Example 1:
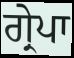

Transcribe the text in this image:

ਗ੍ਰੇਪਾ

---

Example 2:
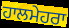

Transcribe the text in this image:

ਹਾਲਮੇਹਰਾ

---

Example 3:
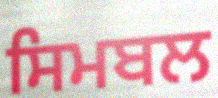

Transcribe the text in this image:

ਸਿਮਬਲ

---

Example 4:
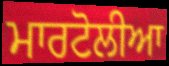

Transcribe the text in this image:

ਮਾਰਟੋਲੀਆ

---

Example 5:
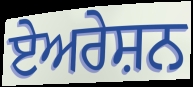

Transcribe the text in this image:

ਏਅਰੇਸ਼ਨ